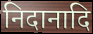
निदानादि